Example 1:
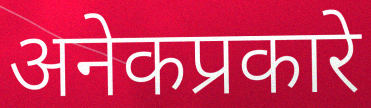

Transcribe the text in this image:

अनेकप्रकारे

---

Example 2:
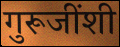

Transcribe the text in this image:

गुरूजींशी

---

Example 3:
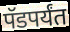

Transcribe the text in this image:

पॅडपर्यंत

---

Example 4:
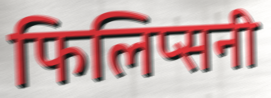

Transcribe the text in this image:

फिलिप्सनी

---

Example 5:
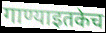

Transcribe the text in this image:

गाण्याइतकेच